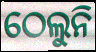
ଠେଲୁନି